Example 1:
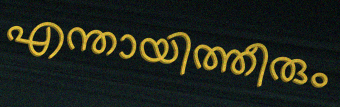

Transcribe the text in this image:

എന്തായിത്തീരും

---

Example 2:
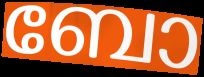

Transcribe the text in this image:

ബോ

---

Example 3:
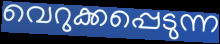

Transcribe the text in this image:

വെറുക്കപ്പെടുന്ന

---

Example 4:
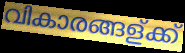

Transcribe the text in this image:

വികാരങ്ങള്ക്ക്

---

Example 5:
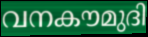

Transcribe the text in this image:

വനകൗമുദി